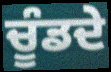
ਚੂੰਡਦੇ